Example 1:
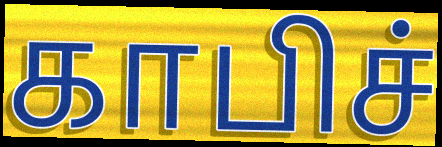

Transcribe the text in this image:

காபிச்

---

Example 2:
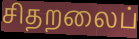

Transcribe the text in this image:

சிதறலைப்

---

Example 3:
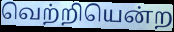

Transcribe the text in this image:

வெற்றியென்ற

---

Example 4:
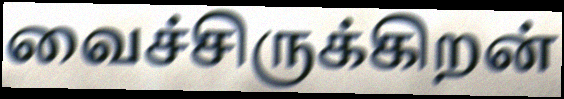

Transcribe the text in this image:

வைச்சிருக்கிறன்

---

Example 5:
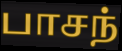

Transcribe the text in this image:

பாசந்